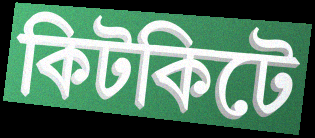
কিটকিটে